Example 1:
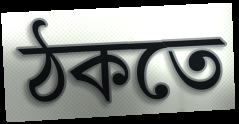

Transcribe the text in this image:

ঠকতে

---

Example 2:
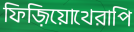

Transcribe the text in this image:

ফিজ়িয়োথেরাপি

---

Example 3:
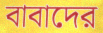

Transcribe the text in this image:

বাবাদের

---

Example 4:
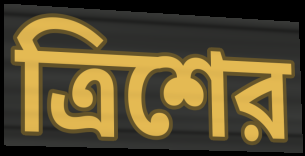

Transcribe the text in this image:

ত্রিশের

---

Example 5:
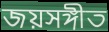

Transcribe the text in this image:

জয়সঙ্গীত